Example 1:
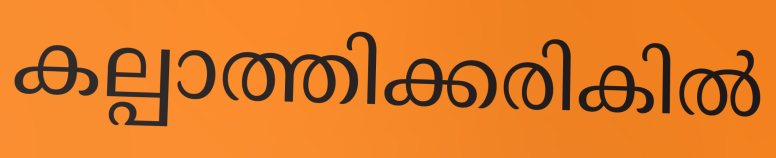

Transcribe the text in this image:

കല്പാത്തിക്കരികിൽ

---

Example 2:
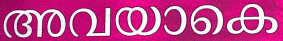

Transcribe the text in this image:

അവയാകെ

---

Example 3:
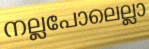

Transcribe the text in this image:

നല്ലപോലെല്ലാ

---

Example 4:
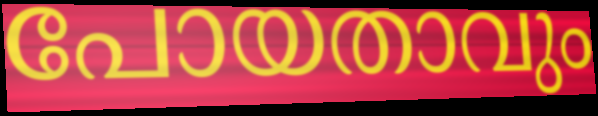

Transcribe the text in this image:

പോയതാവും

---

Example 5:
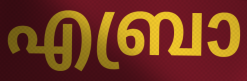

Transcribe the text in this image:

എബ്രാ